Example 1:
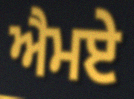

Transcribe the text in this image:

ਐਮਏ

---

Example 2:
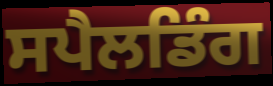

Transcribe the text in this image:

ਸਪੈਲਡਿੰਗ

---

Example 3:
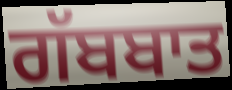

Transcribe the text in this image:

ਗੱਬਬਾਤ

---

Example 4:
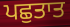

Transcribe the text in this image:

ਪਛੁਤਾਤ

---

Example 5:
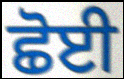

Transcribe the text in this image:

ਛੋਈ